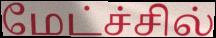
மேட்ச்சில்